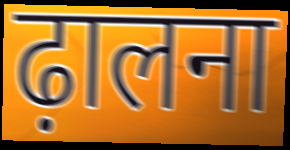
ढ़ालना